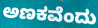
ಅಣಕವೆಂದು